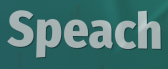
Speach